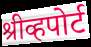
श्रीव्हपोर्ट